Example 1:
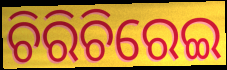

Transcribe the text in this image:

ଚିରିଚିରେଇ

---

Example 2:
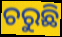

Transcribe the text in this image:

ଚରୁଛି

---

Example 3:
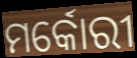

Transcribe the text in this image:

ମର୍କୋରୀ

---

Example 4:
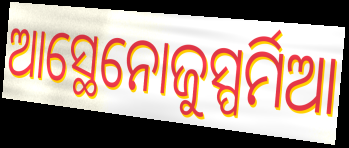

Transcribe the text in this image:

ଆସ୍ଥେନୋଜୁସ୍ପର୍ମିଆ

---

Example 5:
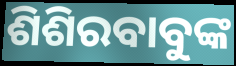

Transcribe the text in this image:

ଶିଶିରବାବୁଙ୍କ